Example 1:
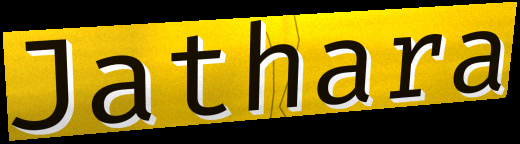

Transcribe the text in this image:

Jathara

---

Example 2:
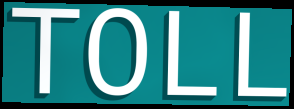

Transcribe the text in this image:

TOLL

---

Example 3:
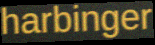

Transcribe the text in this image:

harbinger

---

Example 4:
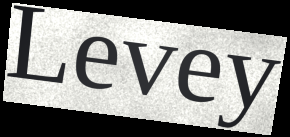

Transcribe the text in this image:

Levey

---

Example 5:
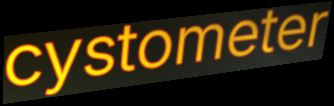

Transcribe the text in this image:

cystometer